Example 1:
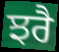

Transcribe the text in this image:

ਝਰੈ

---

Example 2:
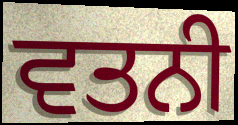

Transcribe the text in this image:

ਵਤਨੀ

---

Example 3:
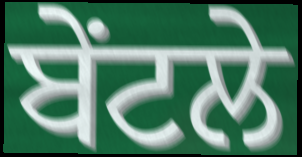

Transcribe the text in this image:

ਬੇਂਟਲੇ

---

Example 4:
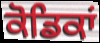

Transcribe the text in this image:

ਕੋਡਿਕਾਂ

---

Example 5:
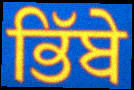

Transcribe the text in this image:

ਭਿੱਬੇ